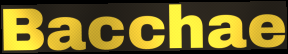
Bacchae